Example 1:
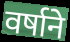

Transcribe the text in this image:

वर्षाने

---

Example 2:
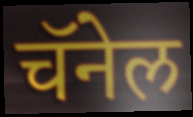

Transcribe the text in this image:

चॅनेल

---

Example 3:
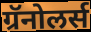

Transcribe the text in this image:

ग्रॅनोलर्स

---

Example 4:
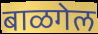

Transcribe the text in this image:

बाळगेल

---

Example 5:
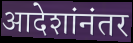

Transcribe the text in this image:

आदेशांनंतर